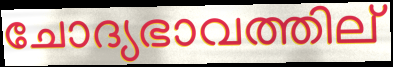
ചോദ്യഭാവത്തില്